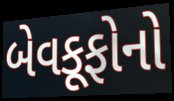
બેવકૂફોનો